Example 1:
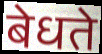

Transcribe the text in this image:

बेधते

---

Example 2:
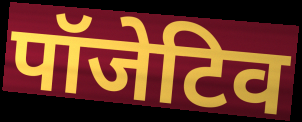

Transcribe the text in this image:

पॉजेटिव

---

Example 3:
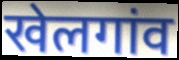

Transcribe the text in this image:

खेलगांव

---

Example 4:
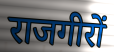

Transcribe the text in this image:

राजगीरों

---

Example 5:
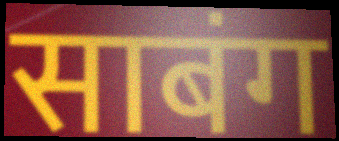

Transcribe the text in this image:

साबंग